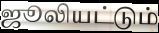
ஜூலியட்டும்